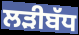
ਲੜੀਬੱਧ